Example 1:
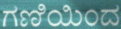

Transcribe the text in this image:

ಗಣಿಯಿಂದ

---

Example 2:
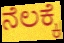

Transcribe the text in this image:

ನೆಲಕ್ಕೆ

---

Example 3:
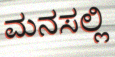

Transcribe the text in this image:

ಮನಸಲ್ಲಿ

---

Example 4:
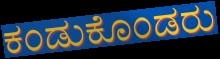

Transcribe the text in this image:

ಕಂಡುಕೊಂಡರು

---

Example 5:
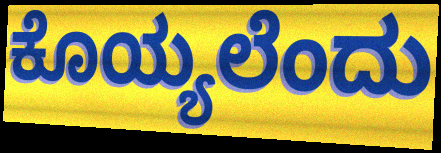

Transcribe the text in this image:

ಕೊಯ್ಯಲೆಂದು